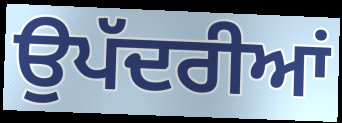
ਉਪੱਦਰੀਆਂ